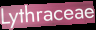
Lythraceae